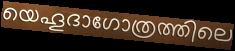
യെഹൂദാഗോത്രത്തിലെ